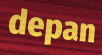
depan